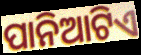
ପାନିଆଟିଏ